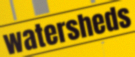
watersheds